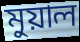
মুয়াল